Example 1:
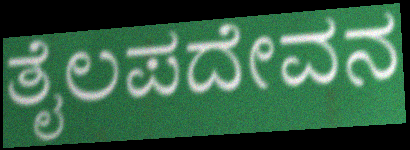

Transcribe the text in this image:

ತೈಲಪದೇವನ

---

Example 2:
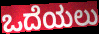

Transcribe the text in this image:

ಒದೆಯಲು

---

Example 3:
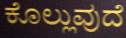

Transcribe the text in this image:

ಕೊಲ್ಲುವುದೆ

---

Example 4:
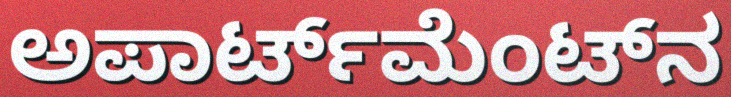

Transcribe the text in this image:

ಅಪಾರ್ಟ್‌ಮೆಂಟ್‌ನ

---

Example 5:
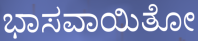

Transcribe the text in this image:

ಭಾಸವಾಯಿತೋ